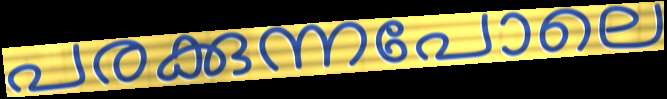
പരക്കുന്നപോലെ